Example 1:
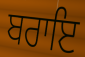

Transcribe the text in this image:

ਬਰਾਇ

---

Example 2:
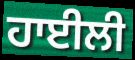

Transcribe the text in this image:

ਹਾਈਲੀ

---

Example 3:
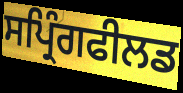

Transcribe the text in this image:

ਸਪ੍ਰਿੰਗਫੀਲਡ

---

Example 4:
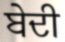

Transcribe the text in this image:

ਬੇਦੀ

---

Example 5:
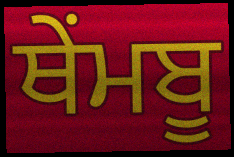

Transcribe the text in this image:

ਥੇਂਮਬੂ